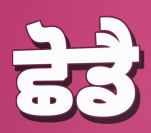
ਛੋਡੈ